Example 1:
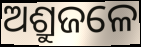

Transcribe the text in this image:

ଅଶ୍ରୁଜଳେ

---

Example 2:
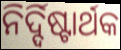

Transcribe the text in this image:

ନିର୍ଦ୍ଦିଷ୍ଟାର୍ଥକ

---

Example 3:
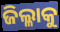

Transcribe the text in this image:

ଜିଲ୍ଳାକୁ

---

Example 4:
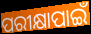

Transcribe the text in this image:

ପରୀକ୍ଷାପାଇଁ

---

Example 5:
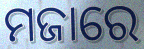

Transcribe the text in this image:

ମଜାରେ